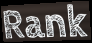
Rank